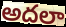
అదలా